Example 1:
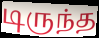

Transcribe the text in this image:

டிருந்த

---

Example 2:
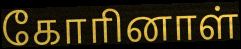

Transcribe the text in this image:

கோரினாள்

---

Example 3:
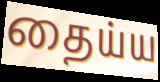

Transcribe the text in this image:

தைய்ய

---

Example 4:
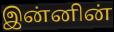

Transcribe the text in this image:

இன்னின்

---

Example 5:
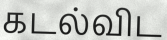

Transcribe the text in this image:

கடல்விட